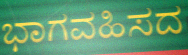
ಭಾಗವಹಿಸದ